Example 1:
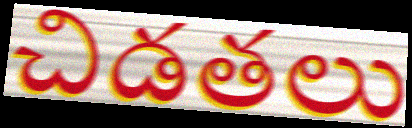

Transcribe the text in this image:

చిడతలు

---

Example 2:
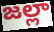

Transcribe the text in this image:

జల్లా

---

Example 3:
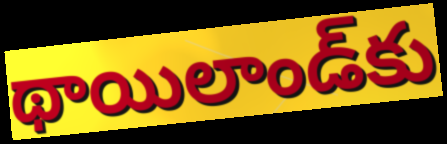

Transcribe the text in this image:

థాయిలాండ్‌కు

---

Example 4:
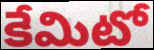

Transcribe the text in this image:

కేమిటో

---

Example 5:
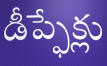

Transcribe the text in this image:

డీప్ఫేక్లు